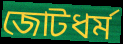
জোটধর্ম